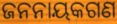
ଜନନାୟକଗଣ